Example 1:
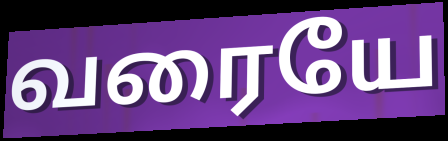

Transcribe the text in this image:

வரையே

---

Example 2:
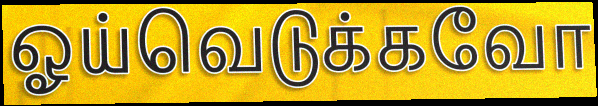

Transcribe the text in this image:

ஓய்வெடுக்கவோ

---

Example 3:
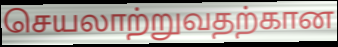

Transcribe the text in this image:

செயலாற்றுவதற்கான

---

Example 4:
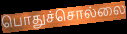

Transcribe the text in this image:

பொதுச்சொல்லை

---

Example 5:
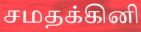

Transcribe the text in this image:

சமதக்கினி